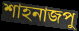
শাহনাজপু